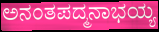
ಅನಂತಪದ್ಮನಾಭಯ್ಯ